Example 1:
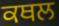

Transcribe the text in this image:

ਕਥਲ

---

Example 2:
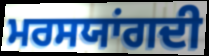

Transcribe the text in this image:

ਮਰਸਯਾਂਗਦੀ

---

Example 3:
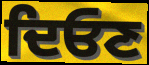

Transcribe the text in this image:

ਦਿਓਣ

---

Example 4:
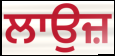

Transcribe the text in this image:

ਲਾਉਜ਼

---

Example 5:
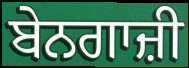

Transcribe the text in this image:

ਬੇਨਗਾਜ਼ੀ